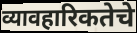
व्यावहारिकतेचे